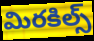
మిరకిల్స్